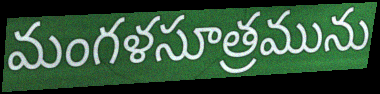
మంగళసూత్రమును